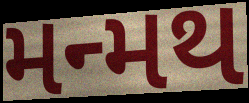
મન્મથ